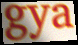
gya